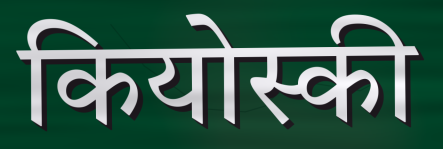
कियोस्की